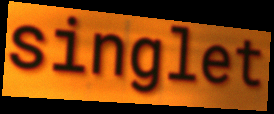
singlet